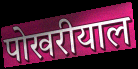
पोखरीयाल